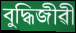
বুদ্ধিজীৱী